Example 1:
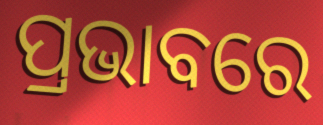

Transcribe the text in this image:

ପ୍ରଭାବରେ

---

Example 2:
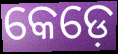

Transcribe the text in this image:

କେଡ଼େ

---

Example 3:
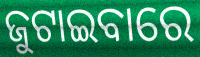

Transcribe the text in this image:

ଜୁଟାଇବାରେ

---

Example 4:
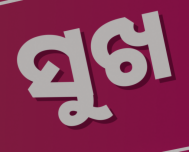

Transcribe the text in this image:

ସୁଖ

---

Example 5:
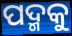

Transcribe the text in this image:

ପଦ୍ମକୁ